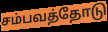
சம்பவத்தோடு